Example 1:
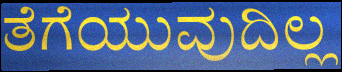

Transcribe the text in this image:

ತೆಗೆಯುವುದಿಲ್ಲ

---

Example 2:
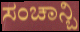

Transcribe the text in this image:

ಸಂಚಾನ್ಬಿ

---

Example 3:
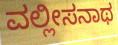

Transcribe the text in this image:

ವಲ್ಲೀಸನಾಥ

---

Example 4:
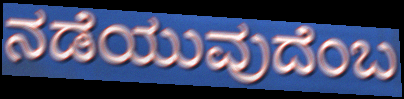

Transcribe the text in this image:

ನಡೆಯುವುದೆಂಬ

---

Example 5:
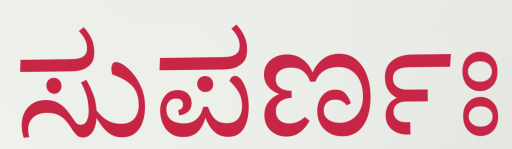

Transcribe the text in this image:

ಸುಪರ್ಣಃ